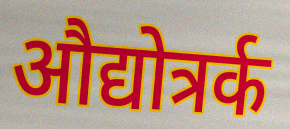
औद्योत्रर्क